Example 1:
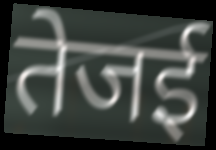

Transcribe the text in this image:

तेजई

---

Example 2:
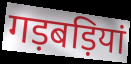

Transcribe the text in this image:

गड़बड़ियां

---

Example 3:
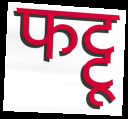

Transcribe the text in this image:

फट्टू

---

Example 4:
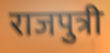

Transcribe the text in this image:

राजपुत्री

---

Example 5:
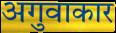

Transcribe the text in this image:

अगुवाकार